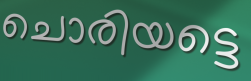
ചൊരിയട്ടെ